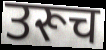
उरूच